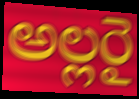
అల్లరై